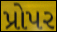
પ્રોપર